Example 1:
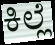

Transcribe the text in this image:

ಕಿಲ್ಲೆ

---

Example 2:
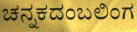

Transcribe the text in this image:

ಚನ್ನಕದಂಬಲಿಂಗ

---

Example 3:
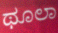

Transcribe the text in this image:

ಥೂಲಾ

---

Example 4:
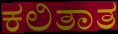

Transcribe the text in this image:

ಕಲಿತಾತ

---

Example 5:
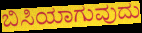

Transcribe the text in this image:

ಬಿಸಿಯಾಗುವುದು